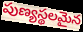
పుణ్యస్థలమైన